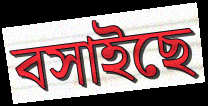
বসাইছে